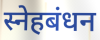
स्नेहबंधन